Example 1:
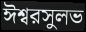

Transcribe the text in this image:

ঈশ্বরসুলভ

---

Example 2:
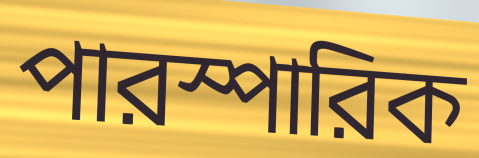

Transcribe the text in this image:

পারস্পারিক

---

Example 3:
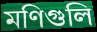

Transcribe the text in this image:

মণিগুলি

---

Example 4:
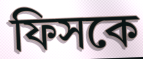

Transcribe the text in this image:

ফিসকে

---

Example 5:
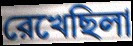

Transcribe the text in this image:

রেখেছিলা